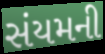
સંયમની